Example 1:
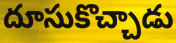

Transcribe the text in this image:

దూసుకొచ్చాడు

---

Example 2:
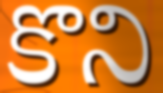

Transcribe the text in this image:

కొని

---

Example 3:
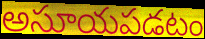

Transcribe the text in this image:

అసూయపడటం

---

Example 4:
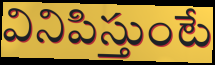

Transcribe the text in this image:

వినిపిస్తుంటే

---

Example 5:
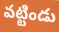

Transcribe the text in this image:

వట్టిండు